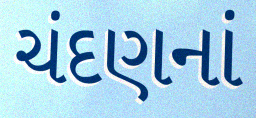
ચંદણનાં